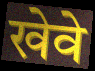
खेवे